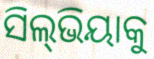
ସିଲ୍‍ଭିୟାକୁ